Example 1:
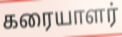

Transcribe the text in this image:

கரையாளர்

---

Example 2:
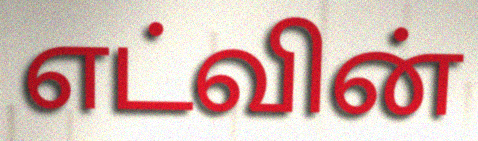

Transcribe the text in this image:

எட்வின்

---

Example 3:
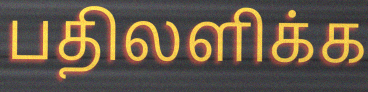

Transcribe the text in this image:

பதிலளிக்க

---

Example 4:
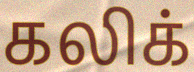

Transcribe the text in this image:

கலிக்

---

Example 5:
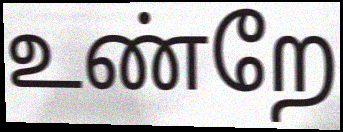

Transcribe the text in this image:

உண்றே